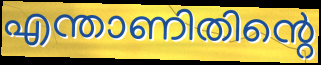
എന്താണിതിന്റെ